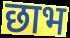
छाभ